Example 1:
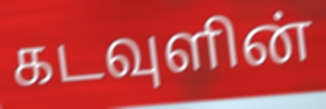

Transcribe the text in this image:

கடவுளின்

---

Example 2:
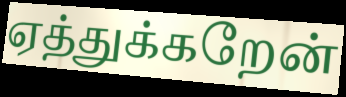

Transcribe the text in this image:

ஏத்துக்கறேன்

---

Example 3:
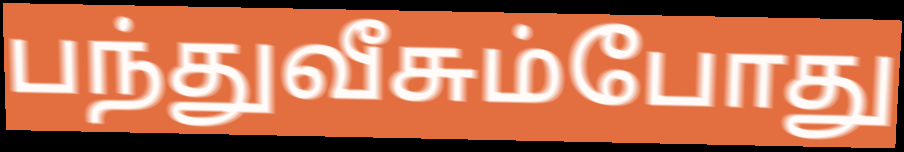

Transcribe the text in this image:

பந்துவீசும்போது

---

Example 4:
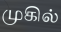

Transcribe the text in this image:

முகில்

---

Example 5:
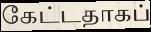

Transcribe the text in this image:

கேட்டதாகப்